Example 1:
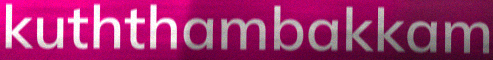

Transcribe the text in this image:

kuththambakkam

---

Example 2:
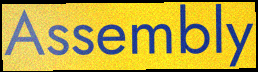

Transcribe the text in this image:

Assembly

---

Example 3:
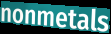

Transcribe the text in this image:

nonmetals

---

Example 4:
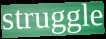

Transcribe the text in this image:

struggle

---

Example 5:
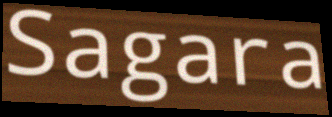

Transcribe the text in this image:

Sagara